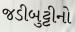
જડીબુટ્ટીનો